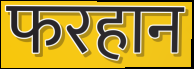
फरहान